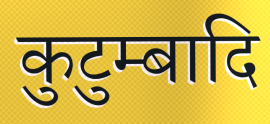
कुटुम्बादि